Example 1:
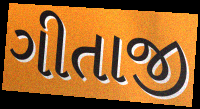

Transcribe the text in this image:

ગીતાજી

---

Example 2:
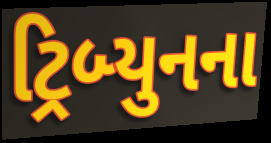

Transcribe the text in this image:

ટ્રિબ્યુનના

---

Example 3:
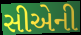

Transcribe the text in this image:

સીએની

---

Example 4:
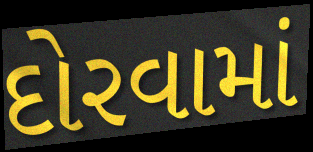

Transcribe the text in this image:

દોરવામાં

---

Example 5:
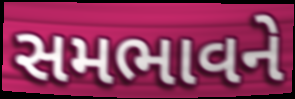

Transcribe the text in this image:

સમભાવને